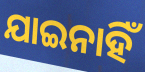
ଯାଇନାହିଁ